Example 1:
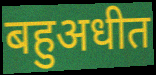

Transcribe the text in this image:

बहुअधीत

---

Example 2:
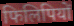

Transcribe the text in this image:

फिलिपियों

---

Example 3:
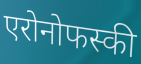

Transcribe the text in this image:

एरोनोफस्की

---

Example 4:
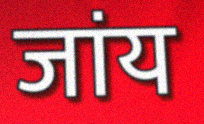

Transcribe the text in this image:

जांय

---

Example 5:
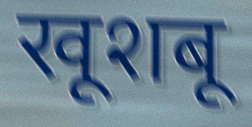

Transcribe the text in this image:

खूशबू